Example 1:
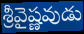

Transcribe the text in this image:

శ్రీవైష్ణవుడు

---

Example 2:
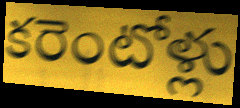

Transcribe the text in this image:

కరెంటోళ్లు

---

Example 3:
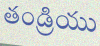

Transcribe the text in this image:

తండ్రియు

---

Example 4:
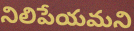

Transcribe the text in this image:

నిలిపేయమని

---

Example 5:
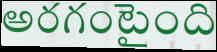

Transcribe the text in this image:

అరగంటైంది